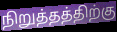
நிறுத்தத்திற்கு